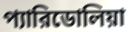
প্যারিডোলিয়া